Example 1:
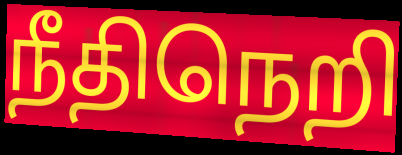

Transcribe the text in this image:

நீதிநெறி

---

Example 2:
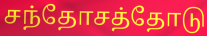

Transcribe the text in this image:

சந்தோசத்தோடு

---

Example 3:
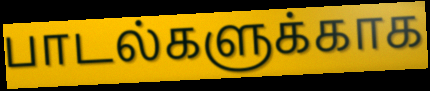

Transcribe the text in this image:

பாடல்களுக்காக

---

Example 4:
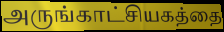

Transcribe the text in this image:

அருங்காட்சியகத்தை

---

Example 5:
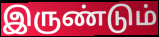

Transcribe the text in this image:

இருண்டும்